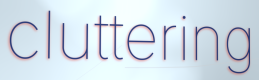
cluttering